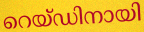
റെയ്ഡിനായി